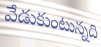
వేడుకుంటున్నది